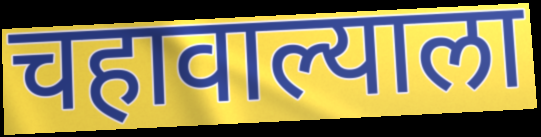
चहावाल्याला